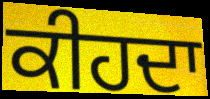
ਕੀਹਦਾ